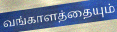
வங்காளத்தையும்